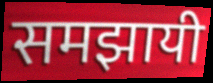
समझायी